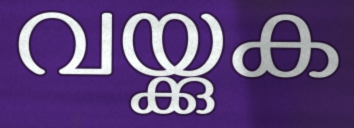
വയ്ക്കുക